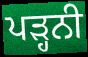
ਪੜ੍ਹਨੀ